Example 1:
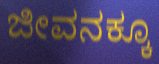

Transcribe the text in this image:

ಜೀವನಕ್ಕೂ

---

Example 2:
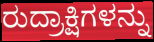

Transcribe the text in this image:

ರುದ್ರಾಕ್ಷಿಗಳನ್ನು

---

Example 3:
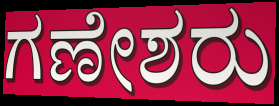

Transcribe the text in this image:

ಗಣೇಶರು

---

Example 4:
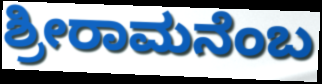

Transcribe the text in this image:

ಶ್ರೀರಾಮನೆಂಬ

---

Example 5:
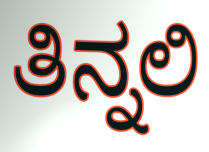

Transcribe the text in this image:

ತಿನ್ನಲಿ